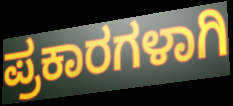
ಪ್ರಕಾರಗಳಾಗಿ